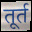
तूर्त